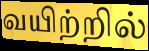
வயிற்றில்